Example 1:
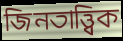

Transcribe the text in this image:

জিনতাত্ত্বিক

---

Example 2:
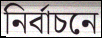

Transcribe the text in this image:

নির্বাচনে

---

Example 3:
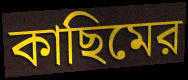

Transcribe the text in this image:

কাছিমের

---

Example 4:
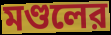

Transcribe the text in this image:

মণ্ডলের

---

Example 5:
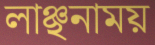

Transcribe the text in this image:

লাঞ্ছনাময়